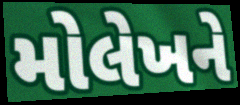
મોલેખને